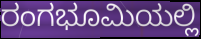
ರಂಗಭೂಮಿಯಲ್ಲಿ